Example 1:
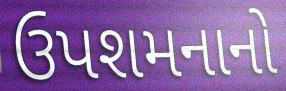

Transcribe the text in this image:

ઉપશમનાનો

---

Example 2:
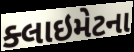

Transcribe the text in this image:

ક્લાઇમેટના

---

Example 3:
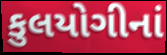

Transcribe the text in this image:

કુલયોગીનાં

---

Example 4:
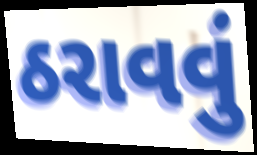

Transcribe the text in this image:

ઠરાવવું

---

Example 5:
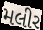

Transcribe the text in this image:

મલીર